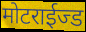
मोटराईज्ड